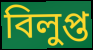
বিলুপ্ত